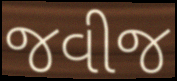
જવીજ